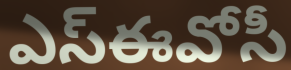
ఎస్ఈవోసీ